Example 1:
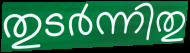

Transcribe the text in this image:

തുടർന്നിതു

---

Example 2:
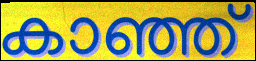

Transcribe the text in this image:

കാഞ്ഞ്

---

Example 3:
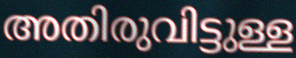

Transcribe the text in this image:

അതിരുവിട്ടുള്ള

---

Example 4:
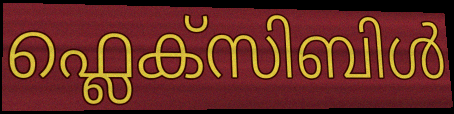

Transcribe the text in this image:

ഫ്ലെക്സിബിൾ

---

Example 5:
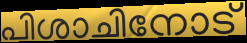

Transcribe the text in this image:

പിശാചിനോട്